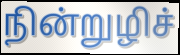
நின்றுழிச்